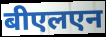
बीएलएन